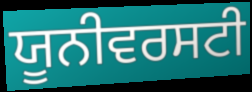
ਯੂਨੀਵਰਸਟੀ